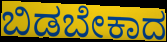
ಬಿಡಬೇಕಾದ